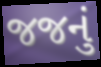
જજનું